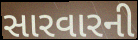
સારવારની